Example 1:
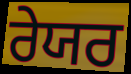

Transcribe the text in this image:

ਰੇਯਰ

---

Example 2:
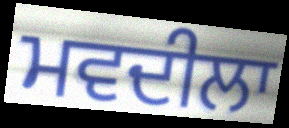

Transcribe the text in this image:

ਮਵਦੀਲਾ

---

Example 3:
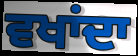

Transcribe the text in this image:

ਵਖਾਂਦਾ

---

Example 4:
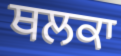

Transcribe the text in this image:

ਥਲਕਾ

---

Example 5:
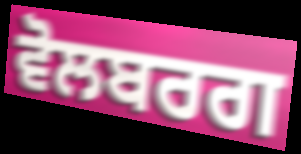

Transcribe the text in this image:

ਵੋਲਬਰਗ